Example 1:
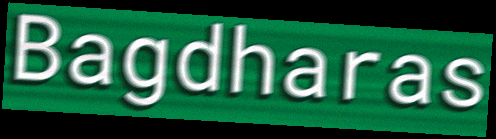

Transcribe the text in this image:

Bagdharas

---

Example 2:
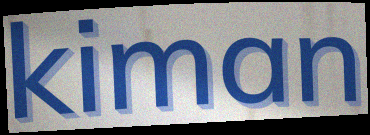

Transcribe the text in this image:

kiman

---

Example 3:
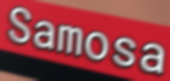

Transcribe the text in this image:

Samosa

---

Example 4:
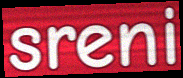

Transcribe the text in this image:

sreni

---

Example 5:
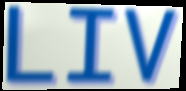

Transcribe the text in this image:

LIV